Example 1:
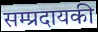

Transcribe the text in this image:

सम्प्रदायकी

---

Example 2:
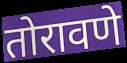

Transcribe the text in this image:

तोरावणे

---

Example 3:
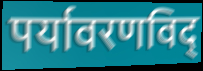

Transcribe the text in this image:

पर्यावरणविद्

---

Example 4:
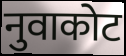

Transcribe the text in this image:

नुवाकोट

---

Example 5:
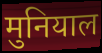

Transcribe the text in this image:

मुनियाल